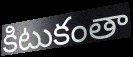
కిటుకంతా